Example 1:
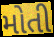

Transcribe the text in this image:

મોતી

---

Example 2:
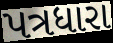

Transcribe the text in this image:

પત્રધારા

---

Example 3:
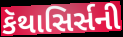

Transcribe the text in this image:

કૅથાસિર્સની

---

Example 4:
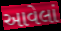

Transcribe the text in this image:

આવેલાં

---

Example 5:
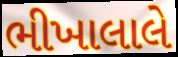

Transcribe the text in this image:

ભીખાલાલે